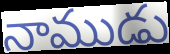
నాముడు